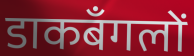
डाकबँगलों